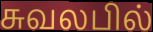
சுவலபில்